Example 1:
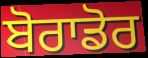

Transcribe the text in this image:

ਬੋਰਾਡੋਰ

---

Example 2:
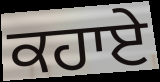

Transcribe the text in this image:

ਕਹਾਏ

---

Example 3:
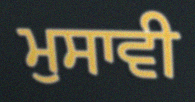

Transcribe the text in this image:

ਮੁਸਾਵੀ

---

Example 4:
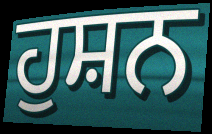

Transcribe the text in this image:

ਹੁਸ਼ਨ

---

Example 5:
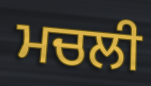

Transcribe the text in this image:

ਮਚਲੀ